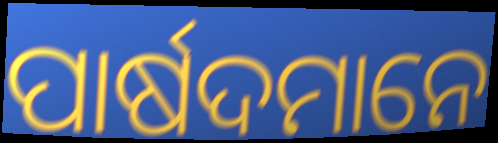
ପାର୍ଷଦମାନେ